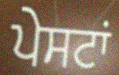
ਪੇਸਟਾਂ